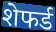
शेफर्ड